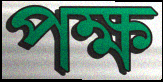
পক্ষ